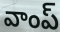
వాంప్